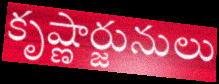
కృష్ణార్జునులు